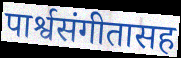
पार्श्वसंगीतासह